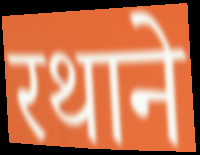
रथाने